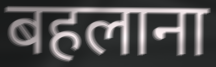
बहलाना